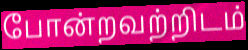
போன்றவற்றிடம்